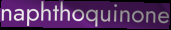
naphthoquinone